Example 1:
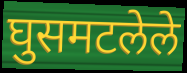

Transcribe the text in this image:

घुसमटलेले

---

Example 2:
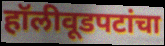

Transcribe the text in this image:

हॉलीवूडपटांचा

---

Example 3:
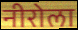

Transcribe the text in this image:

नीरोला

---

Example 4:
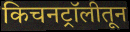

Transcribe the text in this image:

किचनट्रॉलीतून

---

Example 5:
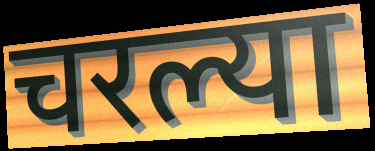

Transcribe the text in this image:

चरल्या